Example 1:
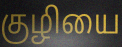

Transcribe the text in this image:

குழியை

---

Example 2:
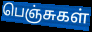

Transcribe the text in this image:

பெஞ்சுகள்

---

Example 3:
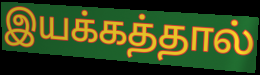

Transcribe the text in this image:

இயக்கத்தால்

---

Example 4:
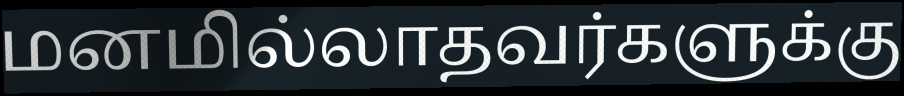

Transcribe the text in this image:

மனமில்லாதவர்களுக்கு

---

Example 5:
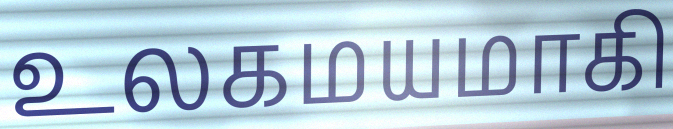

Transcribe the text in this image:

உலகமயமாகி